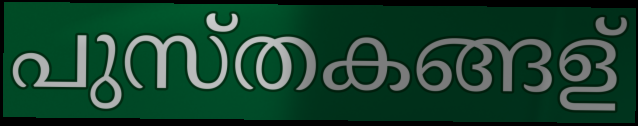
പുസ്തകങ്ങള്